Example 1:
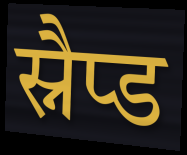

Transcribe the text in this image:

स्नैप्ड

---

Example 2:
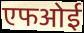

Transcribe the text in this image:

एफओई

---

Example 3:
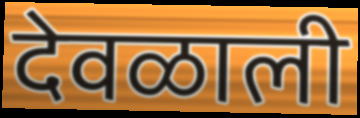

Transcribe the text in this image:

देवळाली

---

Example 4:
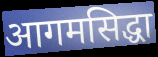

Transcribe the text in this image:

आगमसिद्धा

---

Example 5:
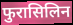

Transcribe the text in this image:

फुरासिलिन